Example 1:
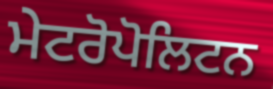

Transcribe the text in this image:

ਮੇਟਰੋਪੋਲਿਟਨ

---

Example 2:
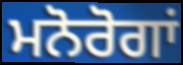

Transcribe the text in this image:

ਮਨੋਰੋਗਾਂ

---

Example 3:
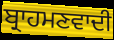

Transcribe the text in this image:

ਬ੍ਰਾਹਮਣਵਾਦੀ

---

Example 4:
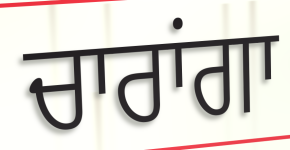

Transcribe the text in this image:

ਚਾਰਾਂਗਾ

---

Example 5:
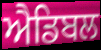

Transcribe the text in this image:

ਐਡਿਬਲ